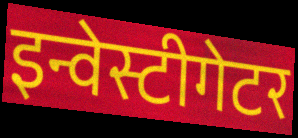
इन्वेस्टीगेटर